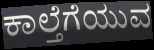
ಕಾಲ್ತೆಗೆಯುವ